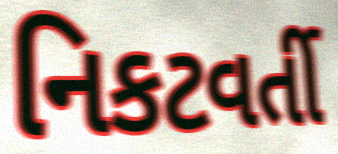
નિકટવર્તી